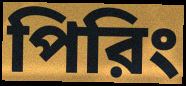
পিরিং